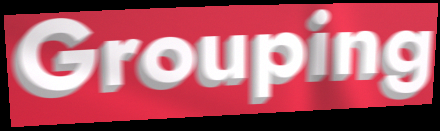
Grouping